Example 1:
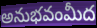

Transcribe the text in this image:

అనుభవంమీద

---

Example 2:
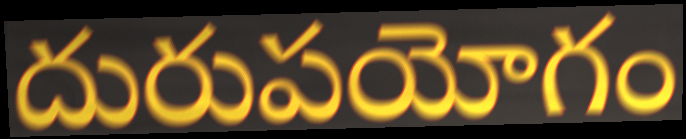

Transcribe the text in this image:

దురుపయోగం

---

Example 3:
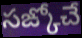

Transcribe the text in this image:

సఙ్కోచే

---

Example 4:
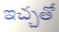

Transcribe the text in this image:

ఇచ్చతో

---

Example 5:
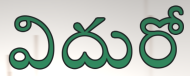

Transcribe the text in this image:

విదురో